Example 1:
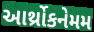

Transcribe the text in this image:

આર્થ્રોકનેમમ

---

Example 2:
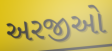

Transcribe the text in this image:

અરજીઓ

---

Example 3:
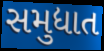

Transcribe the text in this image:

સમુદ્યાત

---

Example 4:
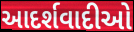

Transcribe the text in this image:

આદર્શવાદીઓ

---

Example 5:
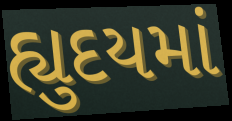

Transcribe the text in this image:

હ્યુદયમાં